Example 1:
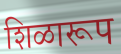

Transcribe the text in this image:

शिळारूप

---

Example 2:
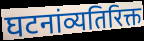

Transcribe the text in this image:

घटनांव्यतिरिक्त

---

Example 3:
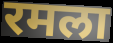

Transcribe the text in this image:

रमला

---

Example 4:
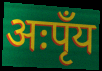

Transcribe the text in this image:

अःपृँय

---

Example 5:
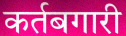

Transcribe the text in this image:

कर्तबगारी